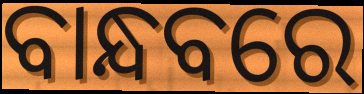
ବାନ୍ଧବରେ